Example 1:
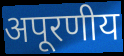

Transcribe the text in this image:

अपूरणीय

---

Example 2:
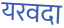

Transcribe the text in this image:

यरवदा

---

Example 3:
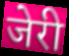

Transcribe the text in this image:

जेरी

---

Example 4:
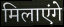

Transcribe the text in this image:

मिलाएंगे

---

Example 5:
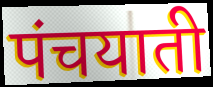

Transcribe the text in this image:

पंचयाती